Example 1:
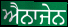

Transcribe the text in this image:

ਐਨਾਜੇਨ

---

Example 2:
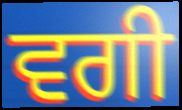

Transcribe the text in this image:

ਵਗੀ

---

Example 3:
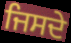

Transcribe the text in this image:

ਜਿਸਦੇ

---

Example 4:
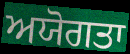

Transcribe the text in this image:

ਅਯੋਗਤਾ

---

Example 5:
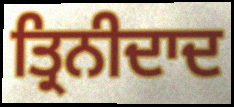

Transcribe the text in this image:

ਤ੍ਰਿਨੀਦਾਦ